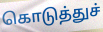
கொடுத்துச்